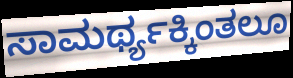
ಸಾಮರ್ಥ್ಯಕ್ಕಿಂತಲೂ